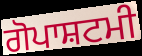
ਗੋਪਾਸ਼ਟਮੀ